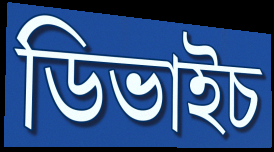
ডিভাইচ